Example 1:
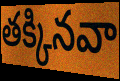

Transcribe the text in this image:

తక్కినవా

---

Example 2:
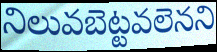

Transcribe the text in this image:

నిలువబెట్టవలెనని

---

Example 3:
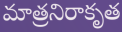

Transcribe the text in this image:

మాత్రనిరాకృత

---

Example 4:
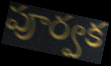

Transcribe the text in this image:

పూర్వక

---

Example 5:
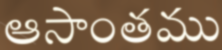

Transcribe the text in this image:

ఆసాంతము